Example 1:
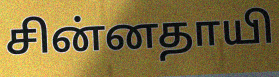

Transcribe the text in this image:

சின்னதாயி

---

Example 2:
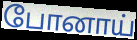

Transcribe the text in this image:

போனாய்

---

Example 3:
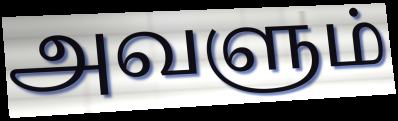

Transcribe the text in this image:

அவளும்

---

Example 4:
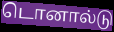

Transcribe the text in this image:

டொனால்டு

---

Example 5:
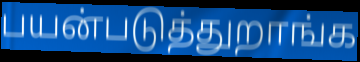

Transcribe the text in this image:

பயன்படுத்துறாங்க